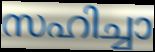
സഹിച്ചാ